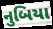
નુબિયા